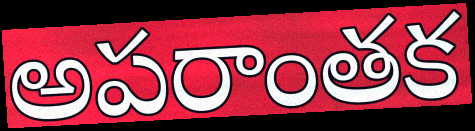
అపరాంతక